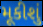
મૂકીશું